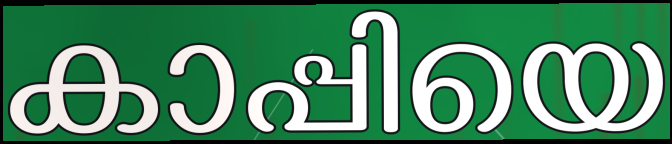
കാപ്പിയെ